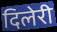
दिलेरी